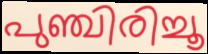
പുഞ്ചിരിച്ചൂ